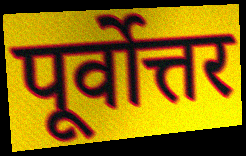
पूर्वोत्तर